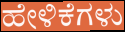
ಹೇಳಿಕೆಗಳು